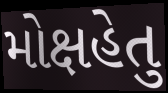
મોક્ષહેતુ